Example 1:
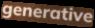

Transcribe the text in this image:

generative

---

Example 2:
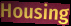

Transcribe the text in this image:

Housing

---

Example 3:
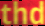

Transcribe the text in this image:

thd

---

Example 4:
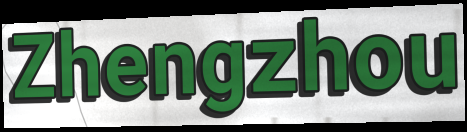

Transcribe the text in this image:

Zhengzhou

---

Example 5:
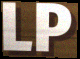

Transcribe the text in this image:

LP